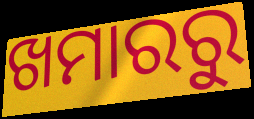
ଖମାରରୁ